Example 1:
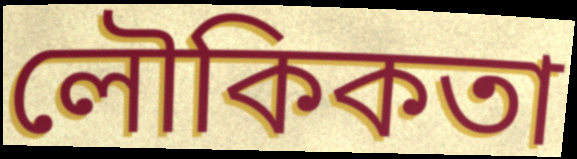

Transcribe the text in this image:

লৌকিকতা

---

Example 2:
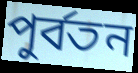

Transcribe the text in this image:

পুর্বতন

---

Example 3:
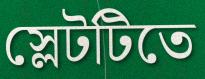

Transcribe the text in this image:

স্লেটটিতে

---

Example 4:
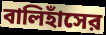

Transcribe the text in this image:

বালিহাঁসের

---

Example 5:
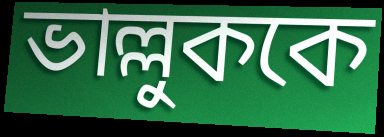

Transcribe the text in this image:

ভাল্লুককে